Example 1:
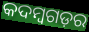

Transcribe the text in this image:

କଦମ୍ବଗଡ଼ର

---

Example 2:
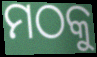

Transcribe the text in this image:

ମଠକୁ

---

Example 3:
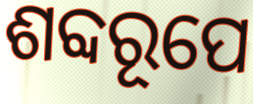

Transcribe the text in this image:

ଶବ୍ଦରୂପେ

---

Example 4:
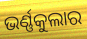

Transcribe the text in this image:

ଭର୍ଣ୍ଣକୁଲାର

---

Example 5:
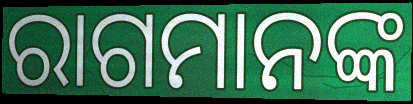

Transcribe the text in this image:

ରାଗମାନଙ୍କ